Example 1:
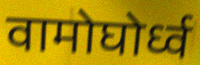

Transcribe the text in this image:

वामोघोर्ध्व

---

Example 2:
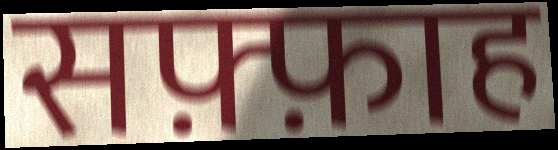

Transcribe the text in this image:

सफ़्फ़ाह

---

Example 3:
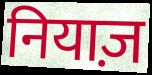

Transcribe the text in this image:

नियाज़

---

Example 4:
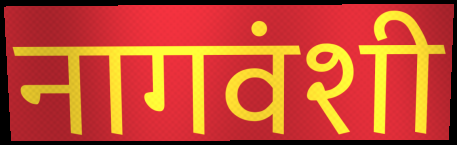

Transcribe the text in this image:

नागवंशी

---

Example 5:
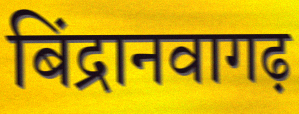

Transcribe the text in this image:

बिंद्रानवागढ़